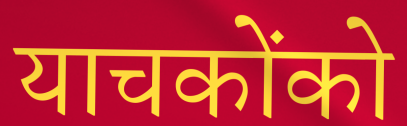
याचकोंको